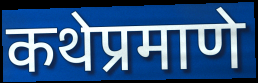
कथेप्रमाणे